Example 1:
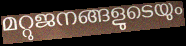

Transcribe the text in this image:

മറ്റുജനങ്ങളുടെയും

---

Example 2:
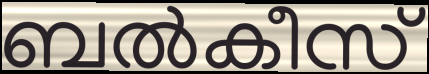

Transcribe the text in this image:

ബൽകീസ്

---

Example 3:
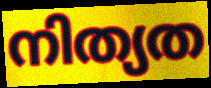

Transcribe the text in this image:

നിത്യത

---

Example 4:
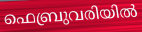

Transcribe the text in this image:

ഫെബ്രുവരിയിൽ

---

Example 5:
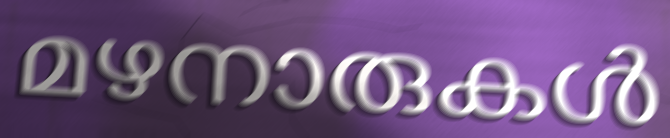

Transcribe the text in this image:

മഴനാരുകൾ